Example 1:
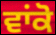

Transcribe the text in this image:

ਵਾਂਕੋ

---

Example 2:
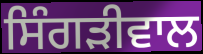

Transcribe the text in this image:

ਸਿੰਗੜੀਵਾਲ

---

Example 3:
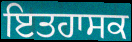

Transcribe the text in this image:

ਇਤਹਾਸਕ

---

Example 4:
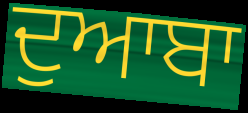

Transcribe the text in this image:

ਦੁਆਬਾ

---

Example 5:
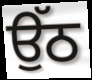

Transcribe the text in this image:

ਉੱਠ